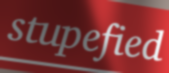
stupefied